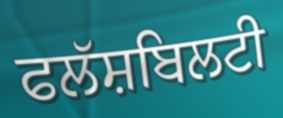
ਫਲੱਸ਼ਬਿਲਟੀ